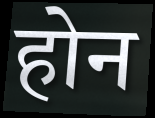
होन